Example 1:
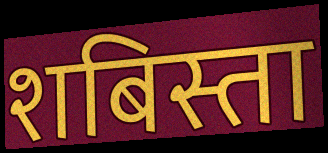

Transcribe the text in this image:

शबिस्ता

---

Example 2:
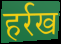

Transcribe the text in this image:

हर्रख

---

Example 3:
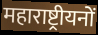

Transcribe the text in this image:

महाराष्ट्रीयनों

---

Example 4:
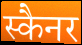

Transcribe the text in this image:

स्कैनर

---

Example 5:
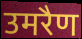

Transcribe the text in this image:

उमरैण